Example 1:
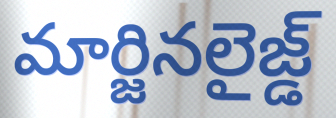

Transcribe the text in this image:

మార్జినలైజ్డ్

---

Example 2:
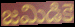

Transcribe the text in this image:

జమిడికె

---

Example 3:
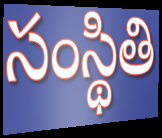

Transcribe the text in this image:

సంస్థితి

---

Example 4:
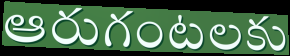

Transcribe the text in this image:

ఆరుగంటలకు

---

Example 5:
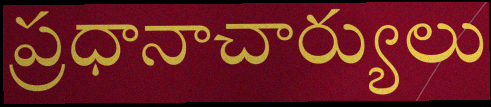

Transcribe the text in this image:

ప్రధానాచార్యులు